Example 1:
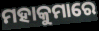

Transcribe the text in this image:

ମହାକୁମାରେ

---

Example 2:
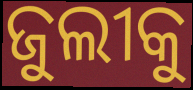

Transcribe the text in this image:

ଜୁଲୀକୁ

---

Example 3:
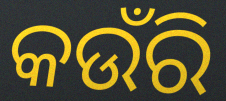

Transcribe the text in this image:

କଉଁରି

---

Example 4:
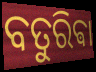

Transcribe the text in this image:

ବତୁରିଵା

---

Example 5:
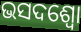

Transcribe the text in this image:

ଭସଦଶ୍ଵୋ